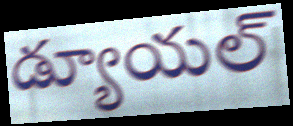
డ్యూయల్